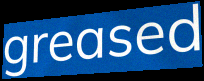
greased